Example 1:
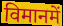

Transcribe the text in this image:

विमानमें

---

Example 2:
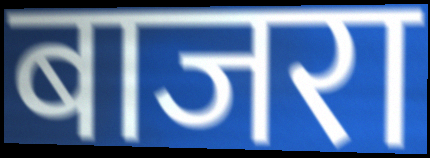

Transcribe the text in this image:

बाजरा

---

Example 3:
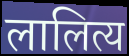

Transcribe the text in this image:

लालित्य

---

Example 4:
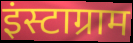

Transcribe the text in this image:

इंस्टाग्राम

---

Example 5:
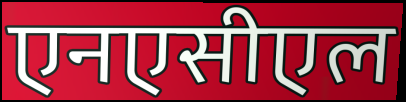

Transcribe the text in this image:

एनएसीएल